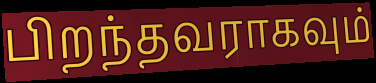
பிறந்தவராகவும்